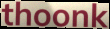
thoonk